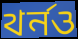
থর্নও